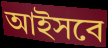
আইসবে